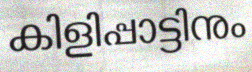
കിളിപ്പാട്ടിനും